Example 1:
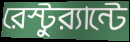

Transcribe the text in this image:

রেস্টুর‍্যান্টে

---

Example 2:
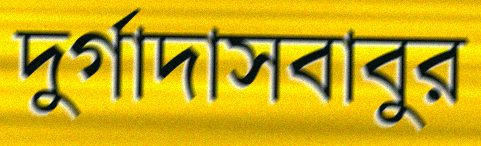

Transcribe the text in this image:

দুর্গাদাসবাবুর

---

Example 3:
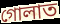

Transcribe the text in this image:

গোলাত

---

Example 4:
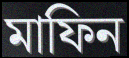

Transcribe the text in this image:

মাফিন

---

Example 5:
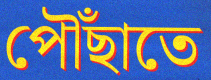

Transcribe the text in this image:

পৌঁছাতে